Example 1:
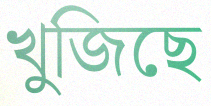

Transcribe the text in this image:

খুজিছে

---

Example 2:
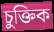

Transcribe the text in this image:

চুক্তিক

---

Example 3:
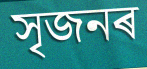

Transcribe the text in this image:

সৃজনৰ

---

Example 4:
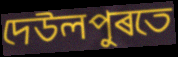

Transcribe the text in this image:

দেউলপুৰতে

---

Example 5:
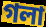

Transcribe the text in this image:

গলা